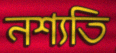
নশ্যতি